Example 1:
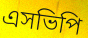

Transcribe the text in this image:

এসভিপি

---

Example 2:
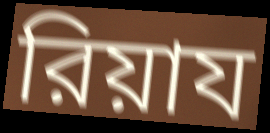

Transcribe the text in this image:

রিয়ায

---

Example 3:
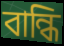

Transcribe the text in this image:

বান্ধি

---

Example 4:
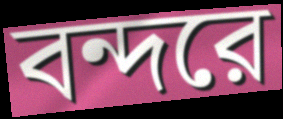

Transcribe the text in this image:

বন্দরে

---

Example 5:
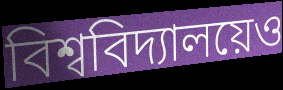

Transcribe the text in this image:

বিশ্ববিদ্যালয়েও